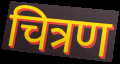
चित्रण